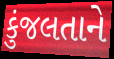
કુંજલતાને